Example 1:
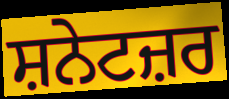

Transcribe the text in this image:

ਸ਼ਨੇਟਜ਼ਰ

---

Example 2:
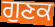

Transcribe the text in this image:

ਗੁਣਕ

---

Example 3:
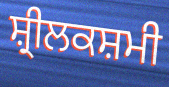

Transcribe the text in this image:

ਸ਼੍ਰੀਲਕਸ਼ਮੀ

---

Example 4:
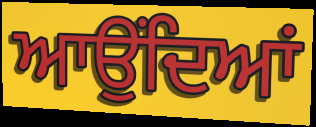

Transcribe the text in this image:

ਆਉਂਦਿਆਂ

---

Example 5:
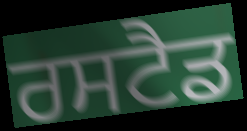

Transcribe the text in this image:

ਰਸਟੈਡ